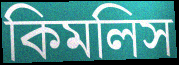
কিমলিস